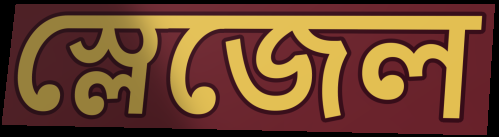
স্লেজেল